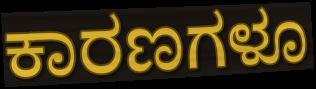
ಕಾರಣಗಳೂ